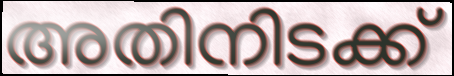
അതിനിടക്ക്